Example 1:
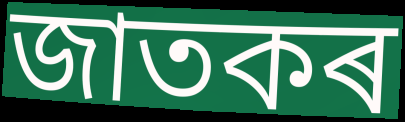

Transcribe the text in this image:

জাতকৰ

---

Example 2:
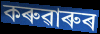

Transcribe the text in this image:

কৰুৱাৰুৰ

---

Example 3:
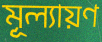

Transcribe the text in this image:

মূল্যায়ণ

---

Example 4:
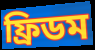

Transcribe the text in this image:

ফ্ৰিডম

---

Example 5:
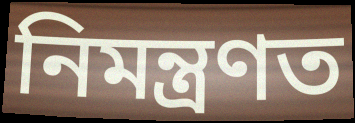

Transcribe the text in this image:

নিমন্ত্ৰণত